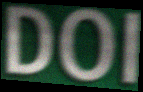
DOI